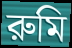
রুমি